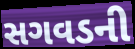
સગવડની